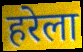
हरेला